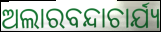
ଅଲାରବନ୍ଦାଚାର୍ଯ୍ୟ